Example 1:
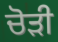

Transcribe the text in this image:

ਚੋੜੀ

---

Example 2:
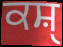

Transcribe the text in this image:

ਕਸ਼ੑ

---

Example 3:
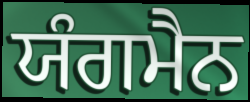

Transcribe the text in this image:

ਯੰਗਮੈਨ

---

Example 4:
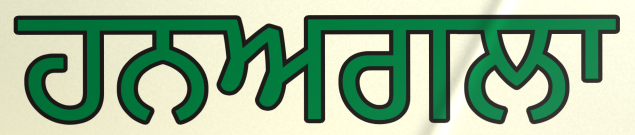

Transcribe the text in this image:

ਹਨਅਗਲਾ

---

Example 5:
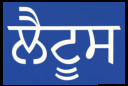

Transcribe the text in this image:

ਲੈਟੂਸ